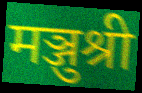
मञ्जुश्री